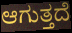
ಆಗುತ್ತದೆ